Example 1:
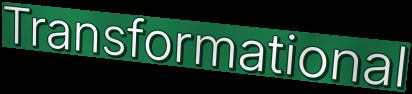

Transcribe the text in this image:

Transformational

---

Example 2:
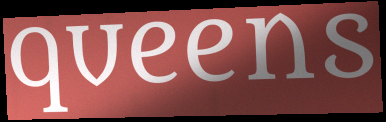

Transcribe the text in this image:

queens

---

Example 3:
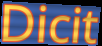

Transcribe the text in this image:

Dicit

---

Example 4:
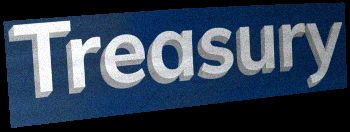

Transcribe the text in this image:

Treasury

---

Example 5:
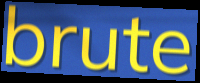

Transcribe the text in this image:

brute